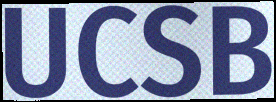
UCSB